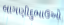
લાગણીદુભાઉઓ